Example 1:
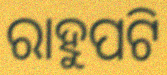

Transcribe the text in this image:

ରାହୁପଟି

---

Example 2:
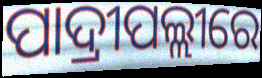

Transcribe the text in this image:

ପାଦ୍ରୀପଲ୍ଲୀରେ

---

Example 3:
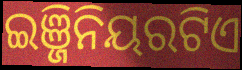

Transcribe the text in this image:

ଇଞ୍ଜିନିୟରଟିଏ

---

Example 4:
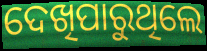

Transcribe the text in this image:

ଦେଖିପାରୁଥିଲେ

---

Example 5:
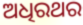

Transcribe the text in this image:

ଅଧିରଥର